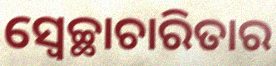
ସ୍ୱେଚ୍ଛାଚାରିତାର